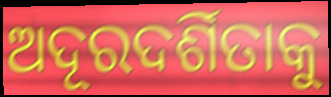
ଅଦୂରଦର୍ଶିତାକୁ